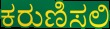
ಕರುಣಿಸಲಿ